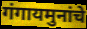
गंगायमुनांचे